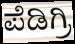
ಪೆಡಿಗ್ರಿ